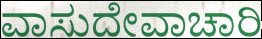
ವಾಸುದೇವಾಚಾರಿ